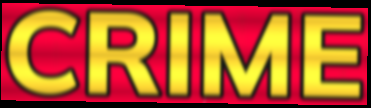
CRIME